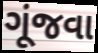
ગૂંજવા